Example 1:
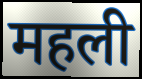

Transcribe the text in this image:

महली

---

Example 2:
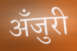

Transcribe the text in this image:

अँजुरी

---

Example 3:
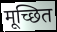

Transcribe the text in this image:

मूच्छित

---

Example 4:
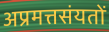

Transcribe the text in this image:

अप्रमत्तसंयतों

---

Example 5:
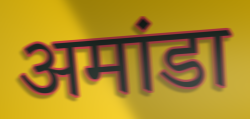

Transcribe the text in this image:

अमांडा